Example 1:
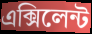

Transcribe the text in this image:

এক্সিলেন্ট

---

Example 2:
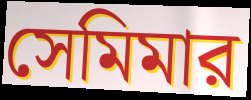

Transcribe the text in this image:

সেমিমার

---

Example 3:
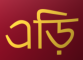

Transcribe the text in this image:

এড়ি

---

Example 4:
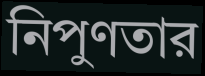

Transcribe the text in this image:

নিপুণতার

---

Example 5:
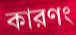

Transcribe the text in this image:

কারণং